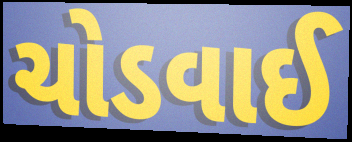
ચોડવાઈ